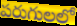
పరుగులలో